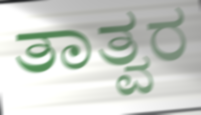
ತಾತ್ವರ